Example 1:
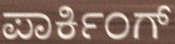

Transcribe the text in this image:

ಪಾರ್ಕಿಂಗ್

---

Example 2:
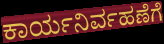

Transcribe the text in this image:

ಕಾರ್ಯನಿರ್ವಹಣೆಗೆ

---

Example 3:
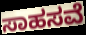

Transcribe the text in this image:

ಸಾಹಸವೆ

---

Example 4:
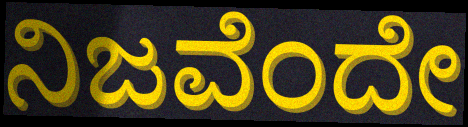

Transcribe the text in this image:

ನಿಜವೆಂದೇ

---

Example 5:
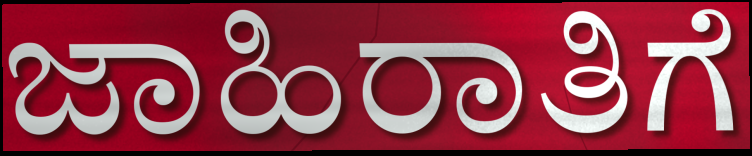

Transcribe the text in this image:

ಜಾಹಿರಾತಿಗೆ